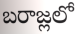
బరాజ్లలో